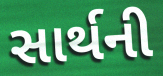
સાર્થની